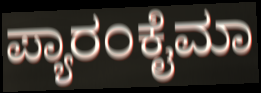
ಪ್ಯಾರಂಕೈಮಾ